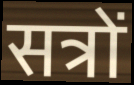
सत्रों